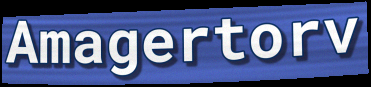
Amagertorv